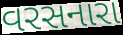
વરસનારા